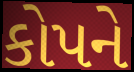
કોપને